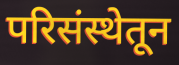
परिसंस्थेतून